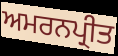
ਅਮਰਨਪ੍ਰੀਤ